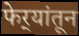
फेर्यांतून